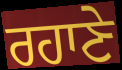
ਰਹਾਣੇ